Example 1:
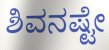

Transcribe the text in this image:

ಶಿವನಷ್ಟೇ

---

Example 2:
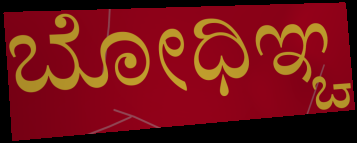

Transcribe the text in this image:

ಬೋಧಿಞ್ಚ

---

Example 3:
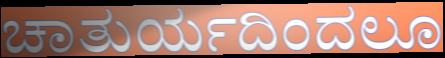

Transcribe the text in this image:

ಚಾತುರ್ಯದಿಂದಲೂ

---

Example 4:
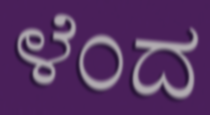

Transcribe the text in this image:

ಳೆಂದ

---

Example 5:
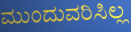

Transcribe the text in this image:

ಮುಂದುವರಿಸಿಲ್ಲ